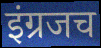
इंग्रजच